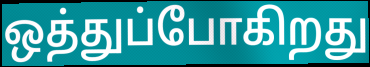
ஒத்துப்போகிறது